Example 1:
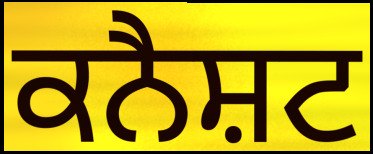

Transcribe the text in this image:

ਕਨੈਸ਼ਟ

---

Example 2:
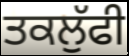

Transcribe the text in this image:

ਤਕਲੁੱਫੀ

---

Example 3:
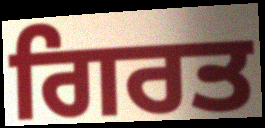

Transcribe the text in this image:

ਗਿਰਤ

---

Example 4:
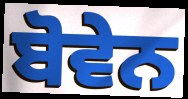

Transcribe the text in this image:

ਬੋਵੇਨ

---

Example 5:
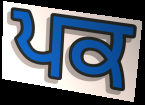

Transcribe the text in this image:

ਪਕ